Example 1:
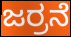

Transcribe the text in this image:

ಜರ್ರನೆ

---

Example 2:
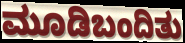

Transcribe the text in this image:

ಮೂಡಿಬಂದಿತು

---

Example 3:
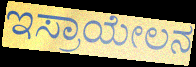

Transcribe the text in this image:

ಇಸ್ರಾಯೇಲನ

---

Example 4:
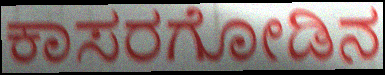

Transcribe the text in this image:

ಕಾಸರಗೋಡಿನ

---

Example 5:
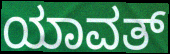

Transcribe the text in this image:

ಯಾವತ್